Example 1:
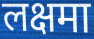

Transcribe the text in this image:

लक्षमा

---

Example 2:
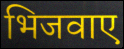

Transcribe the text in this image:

भिजवाए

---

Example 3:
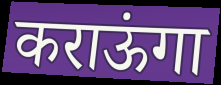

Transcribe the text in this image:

कराऊंगा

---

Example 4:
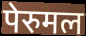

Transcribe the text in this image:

पेरुमल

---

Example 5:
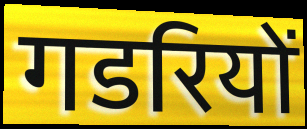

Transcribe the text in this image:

गडरियों